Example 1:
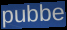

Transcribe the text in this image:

pubbe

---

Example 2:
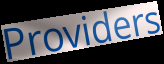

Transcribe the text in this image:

Providers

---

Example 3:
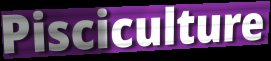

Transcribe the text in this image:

Pisciculture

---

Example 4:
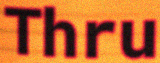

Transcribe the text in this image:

Thru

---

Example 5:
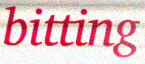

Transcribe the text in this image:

bitting